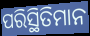
ପରିସ୍ଥିତିମାନ